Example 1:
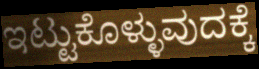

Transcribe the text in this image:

ಇಟ್ಟುಕೊಳ್ಳುವುದಕ್ಕೆ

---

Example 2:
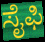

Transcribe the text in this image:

ಸೈಫಿ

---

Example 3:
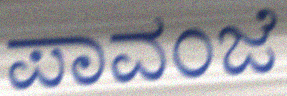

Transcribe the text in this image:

ಪಾವಂಜೆ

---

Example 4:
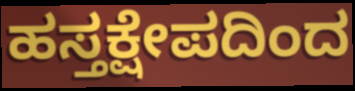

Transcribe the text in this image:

ಹಸ್ತಕ್ಷೇಪದಿಂದ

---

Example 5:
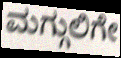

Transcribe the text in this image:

ಮಗ್ಗುಲಿಗೇ